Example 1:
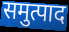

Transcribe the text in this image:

समुत्पाद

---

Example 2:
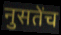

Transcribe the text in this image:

नुसतेंच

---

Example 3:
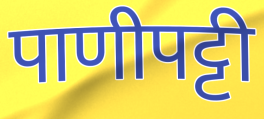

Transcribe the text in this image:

पाणीपट्टी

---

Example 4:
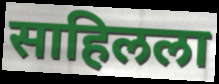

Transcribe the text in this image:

साहिलला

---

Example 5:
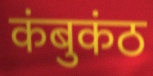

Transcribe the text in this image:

कंबुकंठ